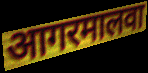
आगरमालवा